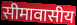
सीमावासीय